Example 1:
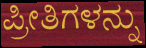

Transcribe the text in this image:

ಪ್ರೀತಿಗಳನ್ನು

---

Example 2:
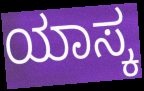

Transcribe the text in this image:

ಯಾಸ್ಕ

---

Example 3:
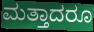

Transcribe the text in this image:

ಮತ್ತಾದರೂ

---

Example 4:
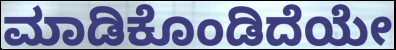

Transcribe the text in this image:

ಮಾಡಿಕೊಂಡಿದೆಯೇ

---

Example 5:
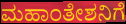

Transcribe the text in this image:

ಮಹಾಂತೇಶನಿಗೆ